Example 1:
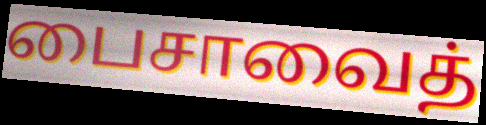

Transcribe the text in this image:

பைசாவைத்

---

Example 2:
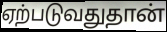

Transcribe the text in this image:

ஏற்படுவதுதான்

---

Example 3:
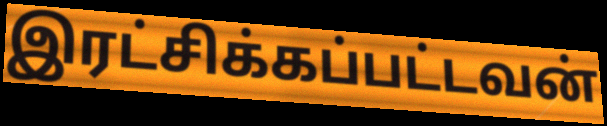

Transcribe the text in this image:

இரட்சிக்கப்பட்டவன்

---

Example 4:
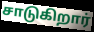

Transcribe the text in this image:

சாடுகிறார்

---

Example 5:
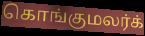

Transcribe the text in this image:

கொங்குமலர்க்